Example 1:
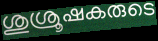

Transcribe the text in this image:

ശുശ്രൂഷകരുടെ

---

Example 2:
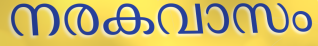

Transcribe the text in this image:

നരകവാസം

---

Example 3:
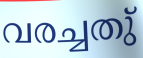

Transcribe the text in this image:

വരച്ചതു്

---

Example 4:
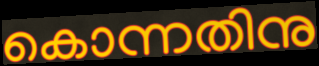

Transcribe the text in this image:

കൊന്നതിനു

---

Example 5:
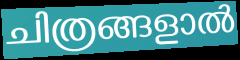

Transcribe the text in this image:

ചിത്രങ്ങളാൽ